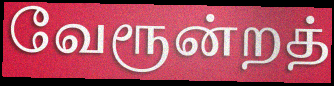
வேரூன்றத்